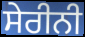
ਸੇਰੀਨੀ